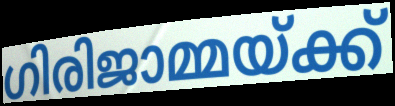
ഗിരിജാമ്മയ്ക്ക്